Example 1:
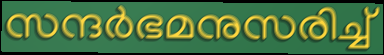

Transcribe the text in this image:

സന്ദർഭമനുസരിച്ച്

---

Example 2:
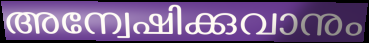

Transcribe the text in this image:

അന്വേഷിക്കുവാനും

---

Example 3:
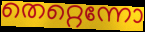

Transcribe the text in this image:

തെറ്റെന്നോ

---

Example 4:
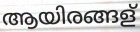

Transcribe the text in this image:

ആയിരങ്ങള്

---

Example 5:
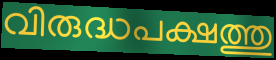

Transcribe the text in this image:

വിരുദ്ധപക്ഷത്തു